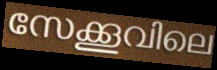
സേക്കൂവിലെ